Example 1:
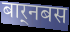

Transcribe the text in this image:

बार्नबस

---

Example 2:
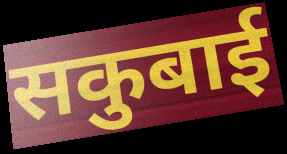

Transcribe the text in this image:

सकुबाई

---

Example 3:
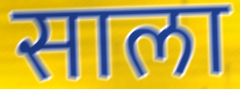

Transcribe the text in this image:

साला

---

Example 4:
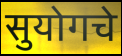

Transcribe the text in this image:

सुयोगचे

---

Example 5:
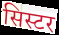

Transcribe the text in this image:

सिस्टर